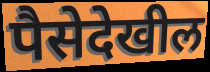
पैसेदेखील